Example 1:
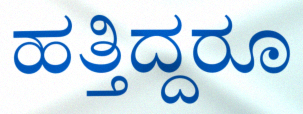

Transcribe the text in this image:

ಹತ್ತಿದ್ದರೂ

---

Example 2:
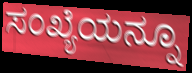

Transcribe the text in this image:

ಸಂಖ್ಯೆಯನ್ನೂ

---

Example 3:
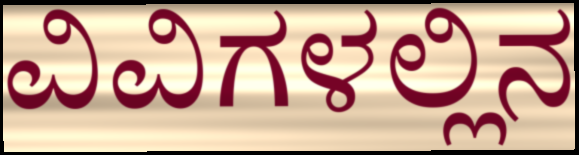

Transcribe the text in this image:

ವಿವಿಗಳಲ್ಲಿನ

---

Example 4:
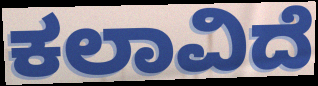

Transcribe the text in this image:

ಕಲಾವಿದೆ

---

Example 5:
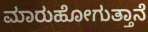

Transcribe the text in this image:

ಮಾರುಹೋಗುತ್ತಾನೆ